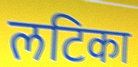
लटिका